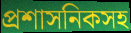
প্রশাসনিকসহ